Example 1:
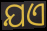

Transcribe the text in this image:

ଯଏ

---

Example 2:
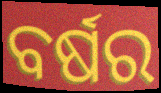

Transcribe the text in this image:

ବର୍ଷର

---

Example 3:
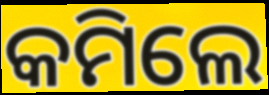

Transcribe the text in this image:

କମିଲେ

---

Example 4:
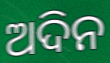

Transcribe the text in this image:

ଅଦିନ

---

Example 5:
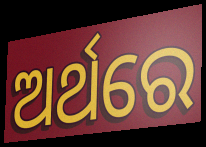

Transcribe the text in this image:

ଅର୍ଥରେ